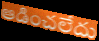
ఆడించలేదు